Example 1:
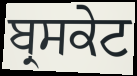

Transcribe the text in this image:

ਬ੍ਰਸਕੇਟ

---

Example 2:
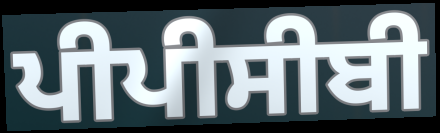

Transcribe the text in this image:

ਪੀਪੀਸੀਬੀ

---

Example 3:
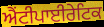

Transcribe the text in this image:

ਐਂਟੀਪਾਈਰੇਟਿਕ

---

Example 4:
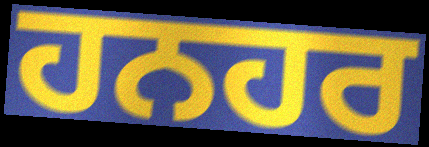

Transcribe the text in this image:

ਹਨਹਰ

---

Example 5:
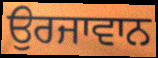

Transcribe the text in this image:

ਉਰਜਾਵਾਨ